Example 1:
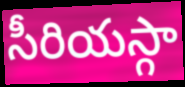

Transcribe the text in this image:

సీరియస్గా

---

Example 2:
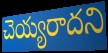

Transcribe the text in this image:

చెయ్యరాదని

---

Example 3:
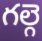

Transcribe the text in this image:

గల్గె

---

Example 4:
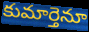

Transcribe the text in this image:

కుమార్తెనూ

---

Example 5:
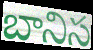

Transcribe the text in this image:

బానిస